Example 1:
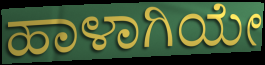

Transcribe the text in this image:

ಹಾಳಾಗಿಯೇ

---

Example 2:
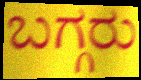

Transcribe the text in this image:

ಬಗ್ಗರು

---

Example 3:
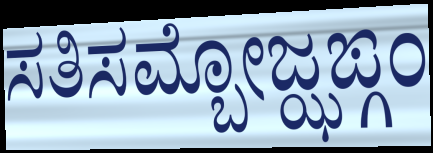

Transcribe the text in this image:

ಸತಿಸಮ್ಬೋಜ್ಝಙ್ಗಂ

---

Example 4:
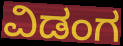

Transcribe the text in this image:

ವಿಡಂಗ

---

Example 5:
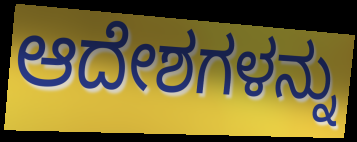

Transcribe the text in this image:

ಆದೇಶಗಳನ್ನು